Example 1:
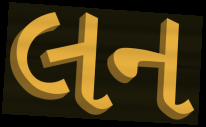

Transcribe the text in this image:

લન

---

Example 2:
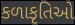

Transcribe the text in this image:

કળાકૃતિઓ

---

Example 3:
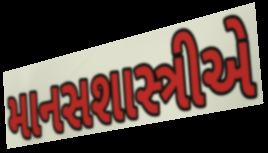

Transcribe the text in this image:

માનસશાસ્ત્રીએ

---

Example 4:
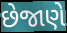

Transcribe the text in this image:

છેજાણે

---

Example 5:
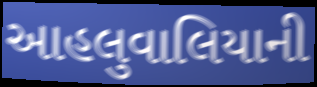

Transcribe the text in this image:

આહલુવાલિયાની